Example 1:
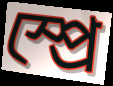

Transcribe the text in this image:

স্প্রে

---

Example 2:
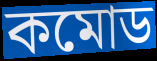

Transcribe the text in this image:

কমোড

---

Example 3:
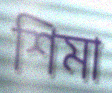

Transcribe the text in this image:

শিমা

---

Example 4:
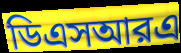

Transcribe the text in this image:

ডিএসআরএ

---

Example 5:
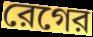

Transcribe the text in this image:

রেগের